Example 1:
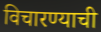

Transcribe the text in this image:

विचारण्याची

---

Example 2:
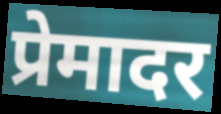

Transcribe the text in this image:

प्रेमादर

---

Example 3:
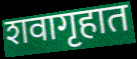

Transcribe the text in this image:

शवागृहात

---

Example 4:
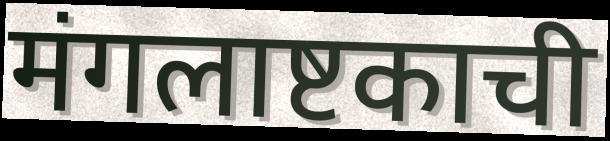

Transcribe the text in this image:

मंगलाष्टकाची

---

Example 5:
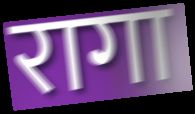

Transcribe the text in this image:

रागा